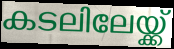
കടലിലേയ്ക്ക്